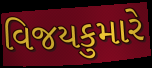
વિજયકુમારે